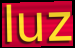
luz